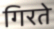
गिरते